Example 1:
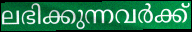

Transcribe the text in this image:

ലഭിക്കുന്നവർക്ക്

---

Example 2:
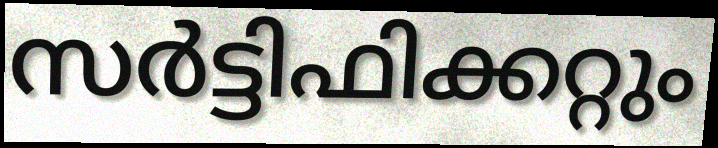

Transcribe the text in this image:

സർട്ടിഫിക്കറ്റും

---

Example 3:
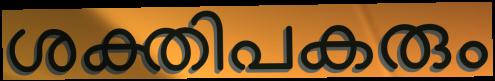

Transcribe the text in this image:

ശക്തിപകരും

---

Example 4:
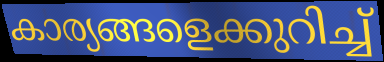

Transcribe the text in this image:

കാര്യങ്ങളെക്കുറിച്ച്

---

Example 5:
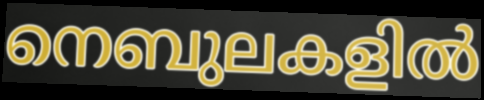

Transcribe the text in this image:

നെബുലകളിൽ